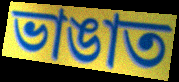
ভাঙাত